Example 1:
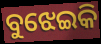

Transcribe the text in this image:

ବୁଝେଇକି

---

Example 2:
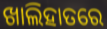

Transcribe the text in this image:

ଖାଲିହାତରେ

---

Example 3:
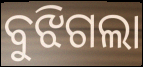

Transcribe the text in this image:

ବୁଝିଗଲା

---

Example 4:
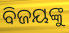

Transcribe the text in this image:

ବିଜୟଙ୍କୁ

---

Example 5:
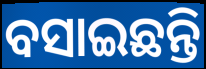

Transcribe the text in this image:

ବସାଇଛନ୍ତି